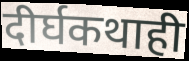
दीर्घकथाही